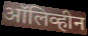
ऑलिव्हीन